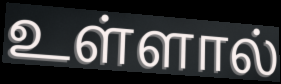
உள்ளால்